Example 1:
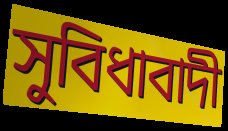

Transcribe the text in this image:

সুবিধাবাদী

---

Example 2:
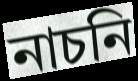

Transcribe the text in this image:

নাচনি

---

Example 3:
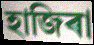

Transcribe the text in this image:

হাজিৰা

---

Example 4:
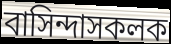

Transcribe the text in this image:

বাসিন্দাসকলক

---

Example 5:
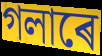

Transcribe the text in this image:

গলাৰে